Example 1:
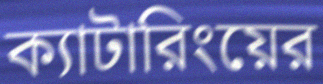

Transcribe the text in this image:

ক্যাটারিংয়ের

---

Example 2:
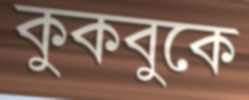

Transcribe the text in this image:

কুকবুকে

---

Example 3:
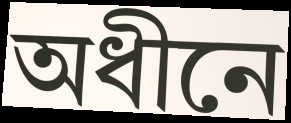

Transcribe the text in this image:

অধীনে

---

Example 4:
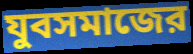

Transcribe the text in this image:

যুবসমাজের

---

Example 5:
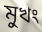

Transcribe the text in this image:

মুখং